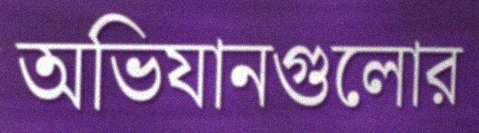
অভিযানগুলোর